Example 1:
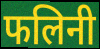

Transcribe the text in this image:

फलिनी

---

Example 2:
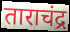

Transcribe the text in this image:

ताराचंद्र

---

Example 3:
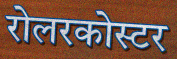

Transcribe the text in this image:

रोलरकोस्टर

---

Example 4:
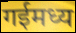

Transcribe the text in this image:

गईमध्य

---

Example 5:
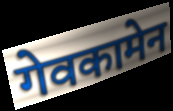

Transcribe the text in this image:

गेवकामेन